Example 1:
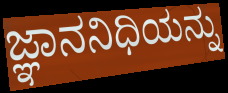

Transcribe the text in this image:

ಜ್ಞಾನನಿಧಿಯನ್ನು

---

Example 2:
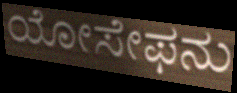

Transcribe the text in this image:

ಯೋಸೇಫನು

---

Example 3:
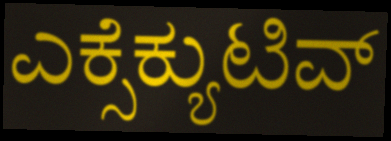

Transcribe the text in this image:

ಎಕ್ಸೆಕ್ಯುಟಿವ್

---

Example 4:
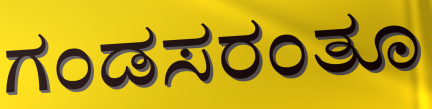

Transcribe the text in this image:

ಗಂಡಸರಂತೂ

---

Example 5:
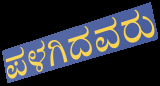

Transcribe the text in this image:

ಪಳಗಿದವರು